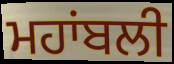
ਮਹਾਂਬਲੀ